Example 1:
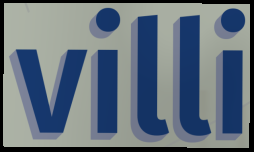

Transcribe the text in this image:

villi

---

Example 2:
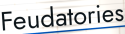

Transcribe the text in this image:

Feudatories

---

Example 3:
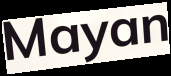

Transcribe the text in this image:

Mayan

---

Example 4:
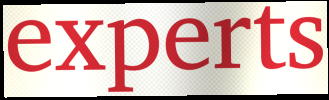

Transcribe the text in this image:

experts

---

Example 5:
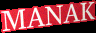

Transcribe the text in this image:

MANAK